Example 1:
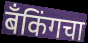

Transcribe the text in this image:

बँकिंगचा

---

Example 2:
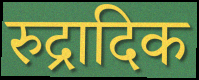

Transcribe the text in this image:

रुद्रादिक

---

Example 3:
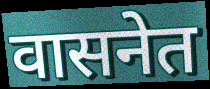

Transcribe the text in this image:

वासनेत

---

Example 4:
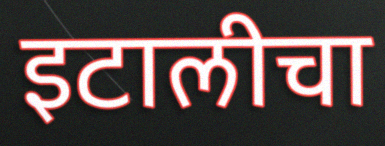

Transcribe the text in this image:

इटालीचा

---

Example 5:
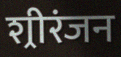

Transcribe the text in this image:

श्रीरंजन